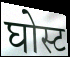
घोस्ट